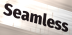
Seamless